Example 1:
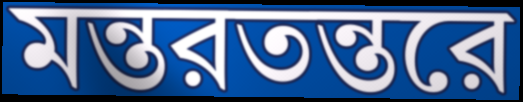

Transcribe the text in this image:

মন্তরতন্তরে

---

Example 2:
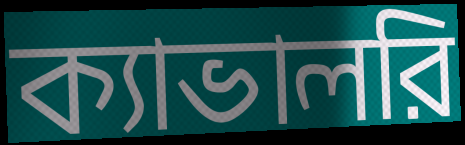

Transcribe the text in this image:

ক্যাভালরি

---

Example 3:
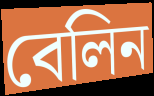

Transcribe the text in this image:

বেলিন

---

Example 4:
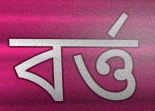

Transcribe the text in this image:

বর্ত্ত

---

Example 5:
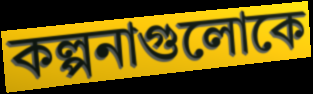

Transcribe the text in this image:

কল্পনাগুলোকে